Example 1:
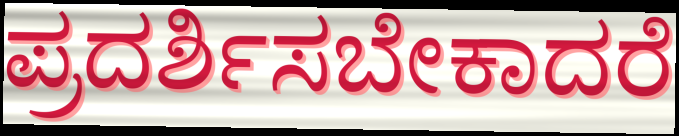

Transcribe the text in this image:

ಪ್ರದರ್ಶಿಸಬೇಕಾದರೆ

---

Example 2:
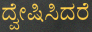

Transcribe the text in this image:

ದ್ವೇಷಿಸಿದರೆ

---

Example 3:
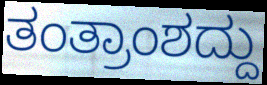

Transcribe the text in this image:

ತಂತ್ರಾಂಶದ್ದು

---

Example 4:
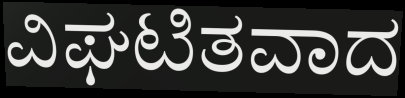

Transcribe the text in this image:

ವಿಘಟಿತವಾದ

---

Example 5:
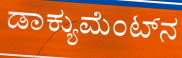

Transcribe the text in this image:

ಡಾಕ್ಯುಮೆಂಟ್‌ನ